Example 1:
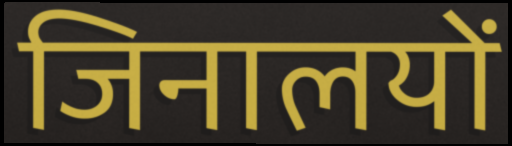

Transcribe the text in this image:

जिनालयों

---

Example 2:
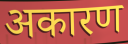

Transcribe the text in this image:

अकारण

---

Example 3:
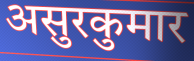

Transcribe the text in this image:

असुरकुमार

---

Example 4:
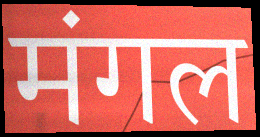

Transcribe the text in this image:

मंगल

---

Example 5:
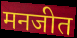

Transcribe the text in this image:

मनजीत